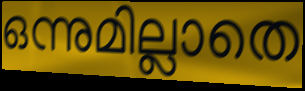
ഒന്നുമില്ലാതെ